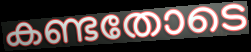
കണ്ടതോടെ